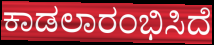
ಕಾಡಲಾರಂಭಿಸಿದೆ